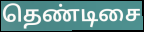
தெண்டிசை